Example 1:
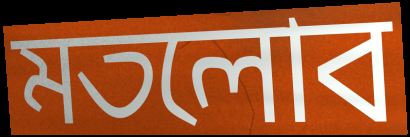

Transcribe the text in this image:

মতলোব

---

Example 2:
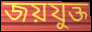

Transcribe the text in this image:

জয়যুক্ত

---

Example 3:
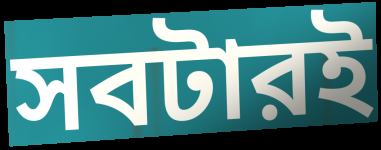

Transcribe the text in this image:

সবটারই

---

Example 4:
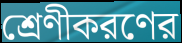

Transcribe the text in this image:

শ্রেণীকরণের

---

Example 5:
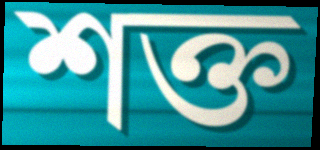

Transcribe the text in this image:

শক্ত